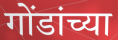
गोंडांच्या